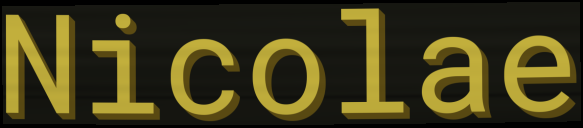
Nicolae